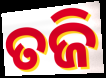
ତଜି